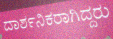
ದಾರ್ಶನಿಕರಾಗಿದ್ದರು